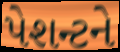
પેશન્ટને